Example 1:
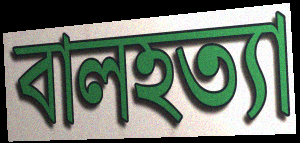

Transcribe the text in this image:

বালহত্যা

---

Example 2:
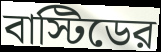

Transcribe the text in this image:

বাস্টিডের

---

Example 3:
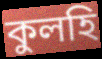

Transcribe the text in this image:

কুলহি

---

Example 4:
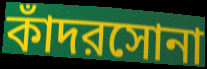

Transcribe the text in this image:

কাঁদরসোনা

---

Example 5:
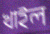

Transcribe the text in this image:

খাইল